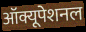
ऑक्यूपेशनल